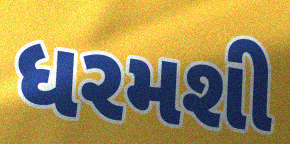
ધરમશી